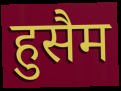
हुसैम